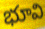
భూవి